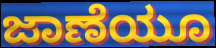
ಜಾಣೆಯೂ